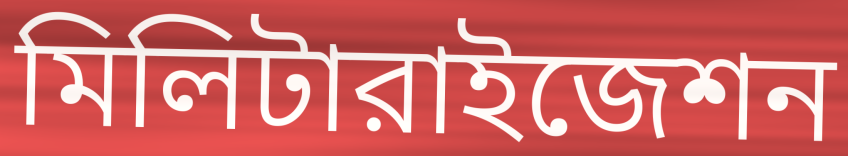
মিলিটারাইজেশন